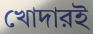
খোদারই